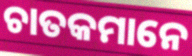
ଚାତକମାନେ